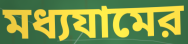
মধ্যযামের